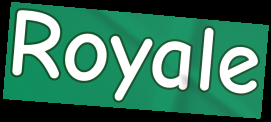
Royale